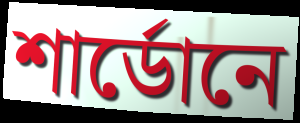
শার্ডোনে